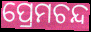
ପ୍ରେମଚନ୍ଦ